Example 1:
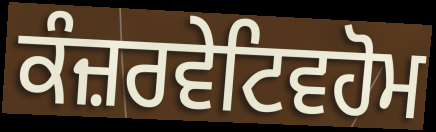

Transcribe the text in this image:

ਕੰਜ਼ਰਵੇਟਿਵਹੋਮ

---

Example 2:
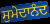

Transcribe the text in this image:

ਸੁਮੇਦਾਨੰਦ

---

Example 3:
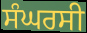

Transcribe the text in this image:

ਸੰਘਰਸੀ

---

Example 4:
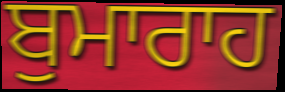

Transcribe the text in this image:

ਬੁਮਾਰਾਹ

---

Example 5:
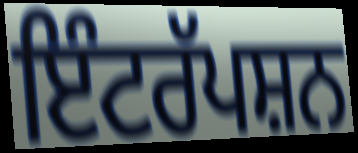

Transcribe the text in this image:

ਇੰਟਰੱਪਸ਼ਨ